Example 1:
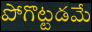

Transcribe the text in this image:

పోగొట్టడమే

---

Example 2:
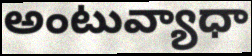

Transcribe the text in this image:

అంటువ్యాధా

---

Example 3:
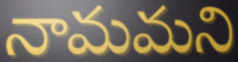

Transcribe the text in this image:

నామమని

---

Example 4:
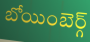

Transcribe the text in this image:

బోయింబెర్గ్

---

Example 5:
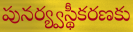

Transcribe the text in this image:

పునర్య్వస్థీకరణకు